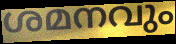
ശമനവും